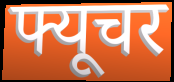
फ्यूचर